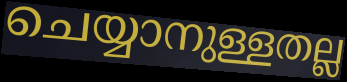
ചെയ്യാനുള്ളതല്ല